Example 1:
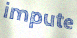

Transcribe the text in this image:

impute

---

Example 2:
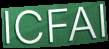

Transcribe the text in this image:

ICFAI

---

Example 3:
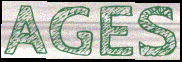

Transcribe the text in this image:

AGES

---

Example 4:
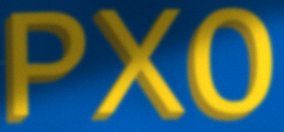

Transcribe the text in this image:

PXO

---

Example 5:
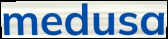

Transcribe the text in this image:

medusa